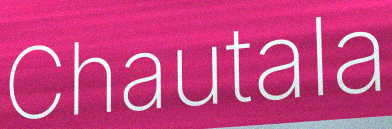
Chautala